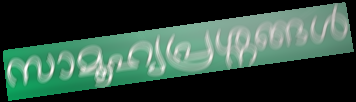
സാമൂഹ്യപ്രശ്നങ്ങൾ